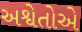
અશ્વેતોએ